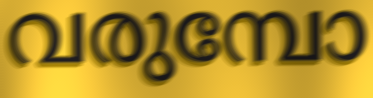
വരുമ്പോ